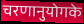
चरणानुयोगके